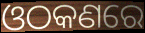
ଓଠକଣରେ